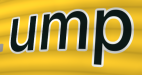
ump